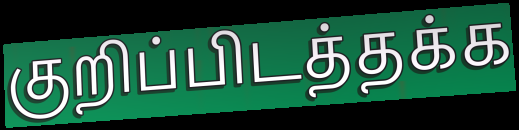
குறிப்பிடத்தக்க